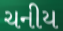
ચનીય